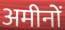
अमीनों